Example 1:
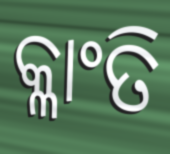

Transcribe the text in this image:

କ୍ଳାଂତି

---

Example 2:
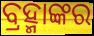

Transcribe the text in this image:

ବ୍ରହ୍ମାଙ୍କର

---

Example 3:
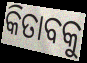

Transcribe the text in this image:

କିତାବକୁ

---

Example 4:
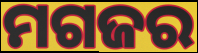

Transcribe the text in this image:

ମଗଜର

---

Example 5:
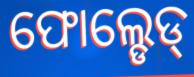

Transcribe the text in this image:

ଫୋଲ୍ଡେଡ୍